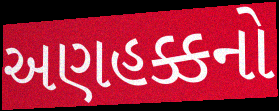
અણહક્કનો